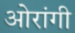
ओरांगी